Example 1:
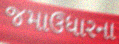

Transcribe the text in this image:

જમાઉધારના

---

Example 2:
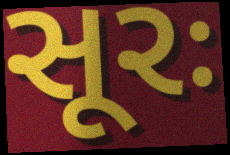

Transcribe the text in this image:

સૂરઃ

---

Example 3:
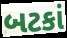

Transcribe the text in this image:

બટકાં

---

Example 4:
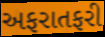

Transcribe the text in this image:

અફરાતફરી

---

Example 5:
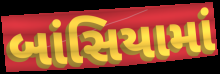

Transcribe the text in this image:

બાંસિયામાં